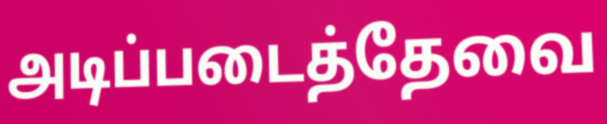
அடிப்படைத்தேவை